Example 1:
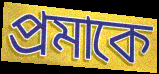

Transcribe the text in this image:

প্রমাকে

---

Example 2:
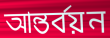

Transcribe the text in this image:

আন্তর্বয়ন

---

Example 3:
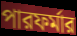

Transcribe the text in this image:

পারফর্মার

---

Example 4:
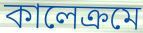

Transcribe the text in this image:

কালেক্রমে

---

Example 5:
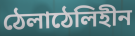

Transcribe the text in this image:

ঠেলাঠেলিহীন